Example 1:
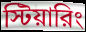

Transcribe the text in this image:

স্টিয়ারিং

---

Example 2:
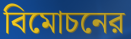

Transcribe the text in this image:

বিমোচনের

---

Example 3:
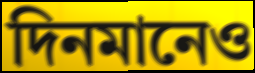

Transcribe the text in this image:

দিনমানেও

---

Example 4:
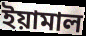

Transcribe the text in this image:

ইয়ামাল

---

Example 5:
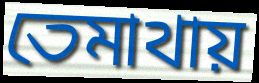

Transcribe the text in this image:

তেমাথায়